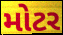
મોટર